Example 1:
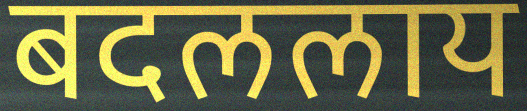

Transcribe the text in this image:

बदललाय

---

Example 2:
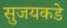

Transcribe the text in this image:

सुजयकडे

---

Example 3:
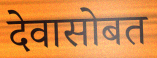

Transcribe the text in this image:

देवासोबत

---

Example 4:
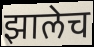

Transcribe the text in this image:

झालेच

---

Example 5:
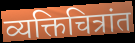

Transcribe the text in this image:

व्यक्तिचित्रांत